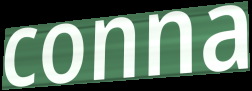
conna